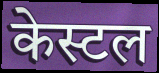
केस्टल